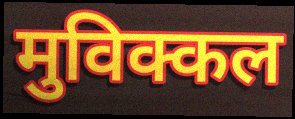
मुविक्कल